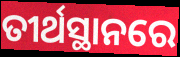
ତୀର୍ଥସ୍ଥାନରେ